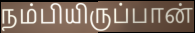
நம்பியிருப்பான்